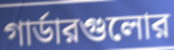
গার্ডারগুলোর